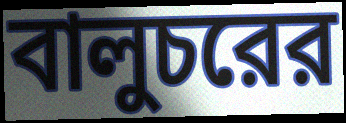
বালুচরের